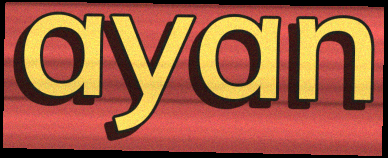
ayan